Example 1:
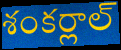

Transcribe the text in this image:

శంకర్లాల్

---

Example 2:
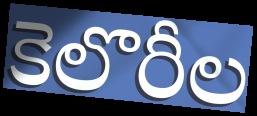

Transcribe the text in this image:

కెలొరీల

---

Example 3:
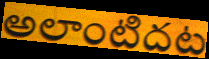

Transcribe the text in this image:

అలాంటిదట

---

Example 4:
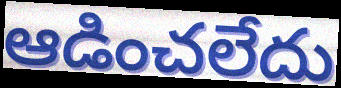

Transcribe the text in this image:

ఆడించలేదు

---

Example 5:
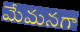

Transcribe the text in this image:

మేమనగా